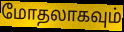
மோதலாகவும்